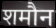
शमौन